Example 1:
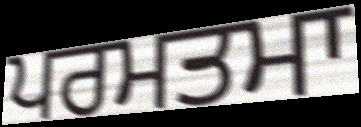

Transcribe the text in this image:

ਪਰਮਤਮਾ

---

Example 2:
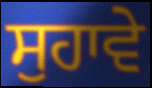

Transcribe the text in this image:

ਸੁਹਾਵੇ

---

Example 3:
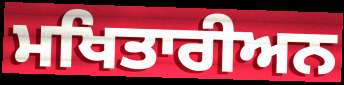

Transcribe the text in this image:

ਮਖਿਤਾਰੀਅਨ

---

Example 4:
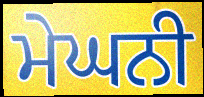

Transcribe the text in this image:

ਮੇਘਨੀ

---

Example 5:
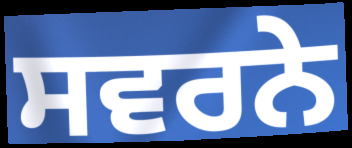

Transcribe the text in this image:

ਸਵਰਨੇ